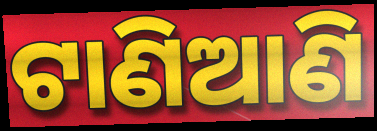
ଟାଣିଆଣି